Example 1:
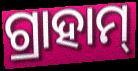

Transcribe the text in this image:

ଗ୍ରାହାମ୍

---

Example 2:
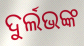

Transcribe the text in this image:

ଦୁର୍ଲଭଙ୍କ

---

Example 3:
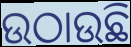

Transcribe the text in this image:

ଉଠାଉଛି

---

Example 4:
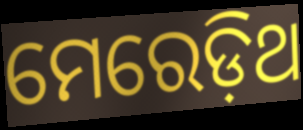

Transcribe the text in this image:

ମେରେଡ଼ିଥ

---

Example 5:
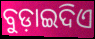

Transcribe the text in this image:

ବୁଡ଼ାଇଦିଏ